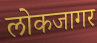
लोकजागर